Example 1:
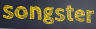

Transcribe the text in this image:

songster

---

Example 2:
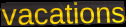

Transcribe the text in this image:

vacations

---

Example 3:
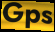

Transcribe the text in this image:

Gps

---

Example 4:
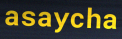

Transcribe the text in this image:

asaycha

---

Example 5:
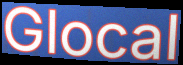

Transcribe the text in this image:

Glocal